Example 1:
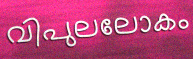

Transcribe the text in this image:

വിപുലലോകം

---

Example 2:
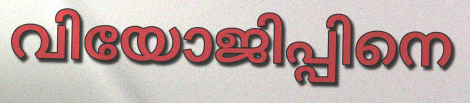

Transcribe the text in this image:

വിയോജിപ്പിനെ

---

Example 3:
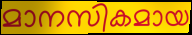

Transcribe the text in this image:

മാനസികമായ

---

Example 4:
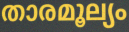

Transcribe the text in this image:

താരമൂല്യം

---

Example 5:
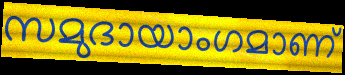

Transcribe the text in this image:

സമുദായാംഗമാണ്